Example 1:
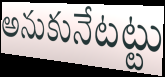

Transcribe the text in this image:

అనుకునేటట్టు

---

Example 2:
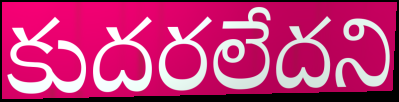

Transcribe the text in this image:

కుదరలేదని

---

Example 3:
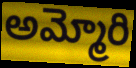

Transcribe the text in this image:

అమ్మోరి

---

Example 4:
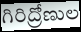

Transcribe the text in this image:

గిరిద్రోణుల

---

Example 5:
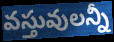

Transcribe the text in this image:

వస్తువులన్నీ